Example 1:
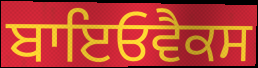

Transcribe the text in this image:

ਬਾਇਓਵੈਕਸ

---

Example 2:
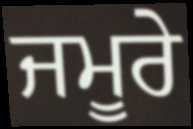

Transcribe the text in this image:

ਜਮੂਰੇ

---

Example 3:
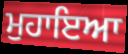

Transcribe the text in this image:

ਮੁਹਾਇਆ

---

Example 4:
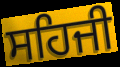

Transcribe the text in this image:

ਸਹਿਜੀ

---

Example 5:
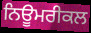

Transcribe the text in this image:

ਨਿਊਮਰੀਕਲ